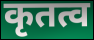
कृतत्व